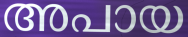
അപായ